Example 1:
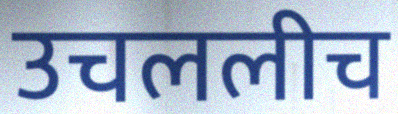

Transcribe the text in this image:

उचललीच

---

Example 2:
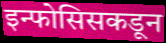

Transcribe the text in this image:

इन्फोसिसकडून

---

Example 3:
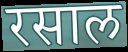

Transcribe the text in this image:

रसाल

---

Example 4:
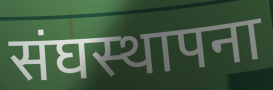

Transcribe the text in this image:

संघस्थापना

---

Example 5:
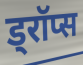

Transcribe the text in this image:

ड्रॉप्स